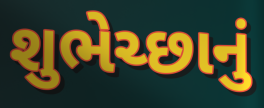
શુભેચ્છાનું